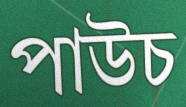
পাউচ